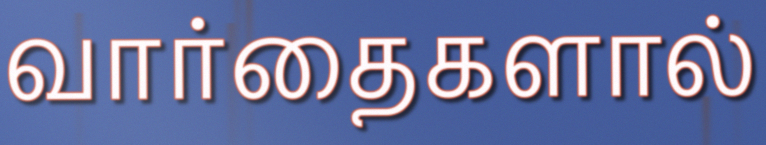
வார்தைகளால்